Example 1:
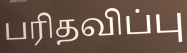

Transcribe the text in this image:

பரிதவிப்பு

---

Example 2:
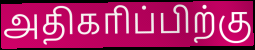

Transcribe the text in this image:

அதிகரிப்பிற்கு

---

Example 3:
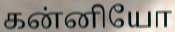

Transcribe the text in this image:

கன்னியோ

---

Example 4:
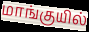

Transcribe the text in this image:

மாங்குயில்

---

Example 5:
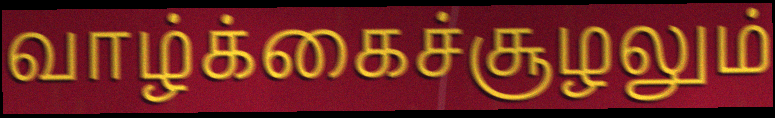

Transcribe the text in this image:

வாழ்க்கைச்சூழலும்